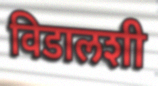
विडालशी